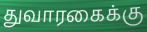
துவாரகைக்கு